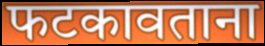
फटकावताना